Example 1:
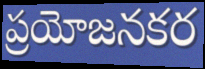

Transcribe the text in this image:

ప్రయోజనకర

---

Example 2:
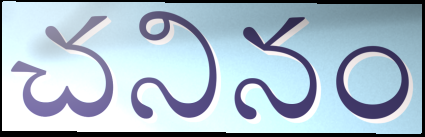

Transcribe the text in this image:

చనినం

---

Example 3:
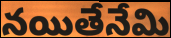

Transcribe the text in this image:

నయితేనేమి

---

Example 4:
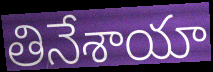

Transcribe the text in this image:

తినేశాయా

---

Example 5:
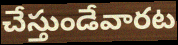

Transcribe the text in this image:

చేస్తుండేవారట